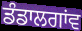
ਡੰਡਾਲਗਾਂਵ